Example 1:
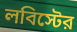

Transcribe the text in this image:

লবিস্টের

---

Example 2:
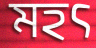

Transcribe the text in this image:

মহত্‍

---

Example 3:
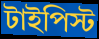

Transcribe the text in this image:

টাইপিস্ট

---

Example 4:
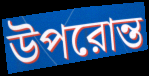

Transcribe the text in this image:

উপরোন্ত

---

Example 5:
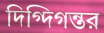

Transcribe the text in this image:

দিগ্দিগন্তর